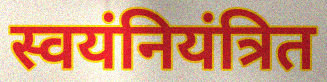
स्वयंनियंत्रित